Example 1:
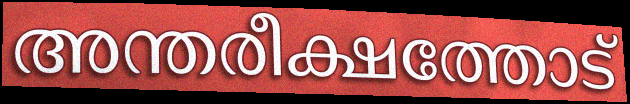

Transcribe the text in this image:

അന്തരീക്ഷത്തോട്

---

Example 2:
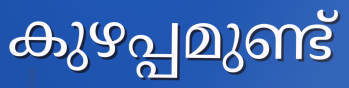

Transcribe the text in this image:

കുഴപ്പമുണ്ട്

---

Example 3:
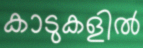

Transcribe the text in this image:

കാടുകളിൽ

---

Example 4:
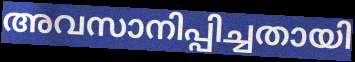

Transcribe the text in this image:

അവസാനിപ്പിച്ചതായി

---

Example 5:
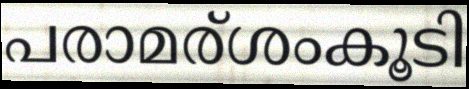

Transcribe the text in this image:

പരാമര്ശംകൂടി